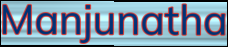
Manjunatha